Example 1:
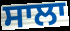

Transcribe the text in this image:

ਸਾਲਾ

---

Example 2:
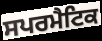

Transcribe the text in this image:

ਸਪਰਮੈਟਿਕ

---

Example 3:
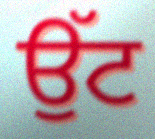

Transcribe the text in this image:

ਉੱਟ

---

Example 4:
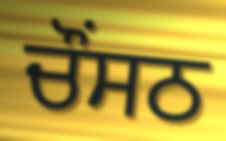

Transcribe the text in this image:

ਚੌਂਸਠ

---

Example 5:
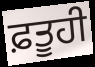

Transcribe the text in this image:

ਫ਼ਤੂਹੀ